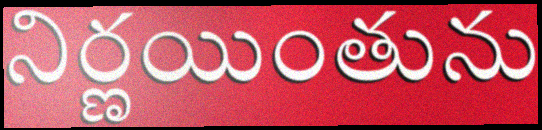
నిర్ణయింతును